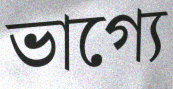
ভাগ্যে